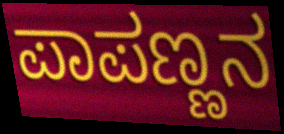
ಪಾಪಣ್ಣನ